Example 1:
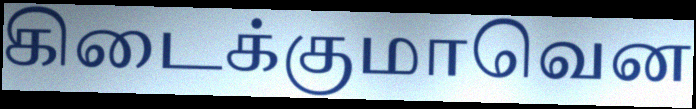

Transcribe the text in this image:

கிடைக்குமாவென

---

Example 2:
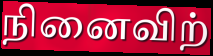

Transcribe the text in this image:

நினைவிற்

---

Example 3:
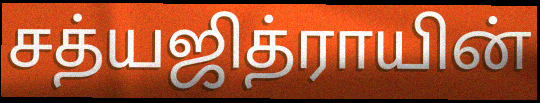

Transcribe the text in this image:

சத்யஜித்ராயின்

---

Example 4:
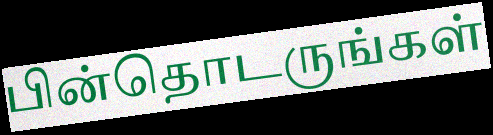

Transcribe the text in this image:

பின்தொடருங்கள்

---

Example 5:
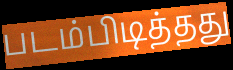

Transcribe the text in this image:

படம்பிடித்தது